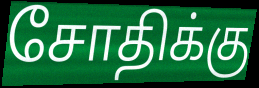
சோதிக்கு